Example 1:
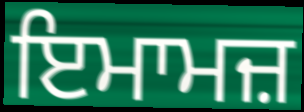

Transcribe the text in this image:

ਇਮਾਮਜ਼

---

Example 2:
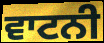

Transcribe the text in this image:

ਵਾਟਨੀ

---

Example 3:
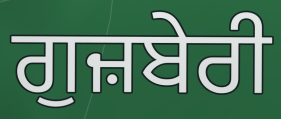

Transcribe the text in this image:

ਗੁਜ਼ਬੇਰੀ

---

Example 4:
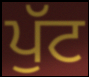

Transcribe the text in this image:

ਪੁੱਟ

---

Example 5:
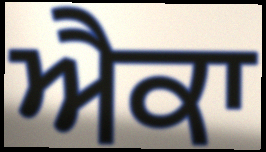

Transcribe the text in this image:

ਐਕਾ